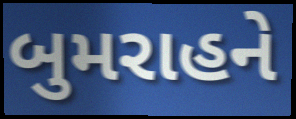
બુમરાહને